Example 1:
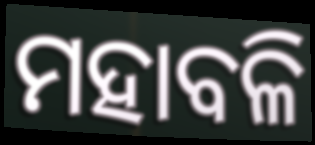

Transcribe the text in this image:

ମହାବଳି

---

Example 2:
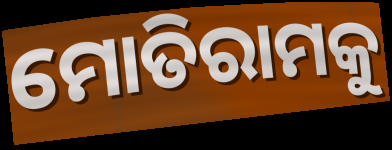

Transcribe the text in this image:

ମୋତିରାମକୁ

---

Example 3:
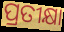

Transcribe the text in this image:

ପ୍ରତୀକ୍ଷା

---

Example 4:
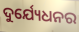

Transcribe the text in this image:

ଦୁର୍ଯ୍ୟେଧନର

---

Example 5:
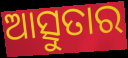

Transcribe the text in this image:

ଆତ୍ସୁତାର